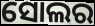
ସୋଲର